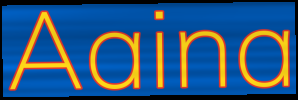
Aaina